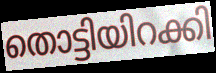
തൊട്ടിയിറക്കി